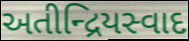
અતીન્દ્રિયસ્વાદ